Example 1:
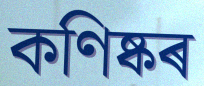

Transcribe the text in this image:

কণিষ্কৰ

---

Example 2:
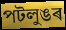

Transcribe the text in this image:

পটলুঙৰ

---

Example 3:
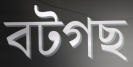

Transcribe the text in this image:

বটগছ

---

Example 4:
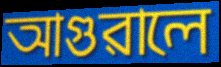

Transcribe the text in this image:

আগুৱালে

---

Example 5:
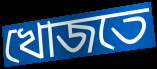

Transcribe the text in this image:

খোজতে